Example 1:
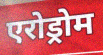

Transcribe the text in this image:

एरोड्रोम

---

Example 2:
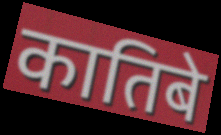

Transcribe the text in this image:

कातिबे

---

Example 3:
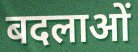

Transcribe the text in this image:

बदलाओं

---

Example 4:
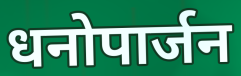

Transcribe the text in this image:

धनोपार्जन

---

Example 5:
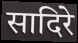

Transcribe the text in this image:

सादिरे